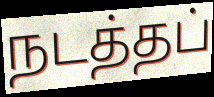
நடத்தப்